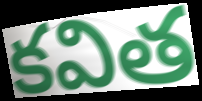
కవిత